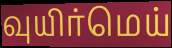
வுயிர்மெய்